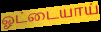
ஓட்டையாய்